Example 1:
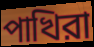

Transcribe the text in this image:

পাখিরা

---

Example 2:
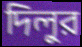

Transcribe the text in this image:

দিলুর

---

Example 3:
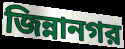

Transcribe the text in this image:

জিন্নানগর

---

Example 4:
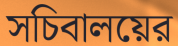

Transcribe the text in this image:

সচিবালয়ের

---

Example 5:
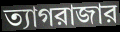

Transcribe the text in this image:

ত্যাগরাজার